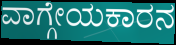
ವಾಗ್ಗೇಯಕಾರನ